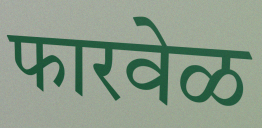
फारवेळ